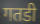
गतडी